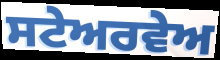
ਸਟੇਅਰਵੇਅ